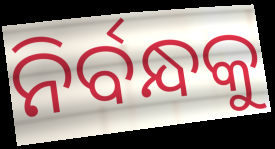
ନିର୍ବନ୍ଧକୁ